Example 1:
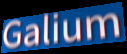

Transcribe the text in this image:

Galium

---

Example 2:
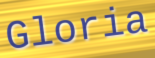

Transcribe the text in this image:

Gloria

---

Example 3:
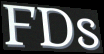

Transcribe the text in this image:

FDs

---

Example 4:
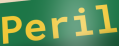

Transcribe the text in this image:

Peril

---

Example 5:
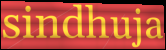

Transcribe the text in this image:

sindhuja